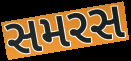
સમરસ